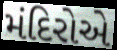
મંદિરોએ